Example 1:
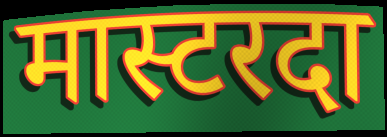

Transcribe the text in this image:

मास्टरदा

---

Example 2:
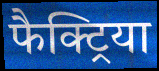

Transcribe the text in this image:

फैक्ट्रिया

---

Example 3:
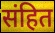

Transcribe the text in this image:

संहित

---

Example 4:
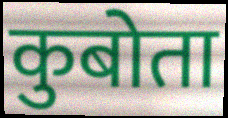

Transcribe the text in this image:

कुबोता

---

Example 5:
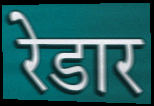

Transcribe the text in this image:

रेडार